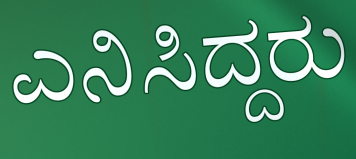
ಎನಿಸಿದ್ದರು